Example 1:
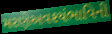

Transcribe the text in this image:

મરણેઅવશ્યંભાવિની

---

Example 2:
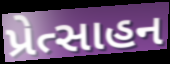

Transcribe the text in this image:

પ્રેત્સાહન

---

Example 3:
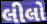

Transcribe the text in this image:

લીલો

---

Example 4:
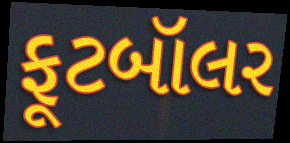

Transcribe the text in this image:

ફૂટબૉલર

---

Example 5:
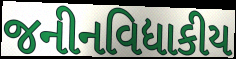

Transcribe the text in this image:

જનીનવિદ્યાકીય